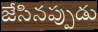
జేసినప్పుడు